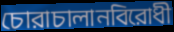
চোরাচালানবিরোধী